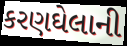
કરણઘેલાની